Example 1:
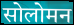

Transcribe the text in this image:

सोलोमन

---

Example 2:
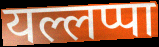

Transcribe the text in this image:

यल्लप्पा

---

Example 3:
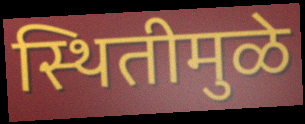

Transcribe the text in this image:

स्थितीमुळे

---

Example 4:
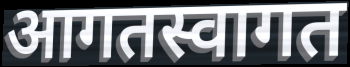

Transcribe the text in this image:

आगतस्वागत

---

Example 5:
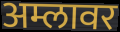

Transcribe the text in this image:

अम्लावर